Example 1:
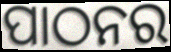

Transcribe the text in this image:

ପାଠନର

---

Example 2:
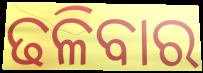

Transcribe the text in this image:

ଢଳିବାର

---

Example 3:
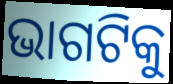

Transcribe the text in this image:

ଭାଗଟିକୁ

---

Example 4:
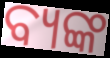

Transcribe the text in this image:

ବ୍ୟଙ୍କ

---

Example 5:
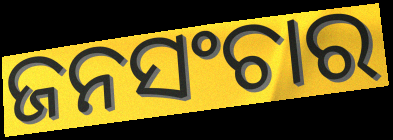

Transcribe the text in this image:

ଜନସଂଚାର